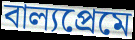
বাল্যপ্রেমে